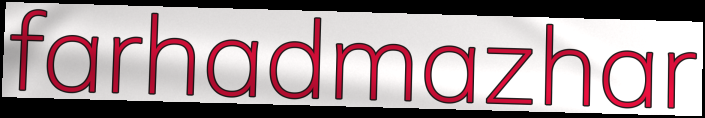
farhadmazhar